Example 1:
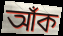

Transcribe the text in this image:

আঁক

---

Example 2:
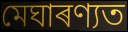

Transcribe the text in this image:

মেঘাৰণ্যত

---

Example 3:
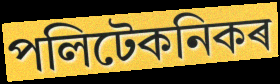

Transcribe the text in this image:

পলিটেকনিকৰ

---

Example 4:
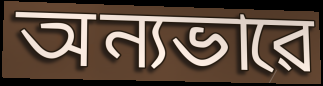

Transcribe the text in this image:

অন্যভাৱে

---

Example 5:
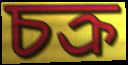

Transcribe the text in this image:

চক্ৰ